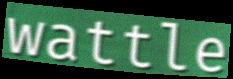
wattle